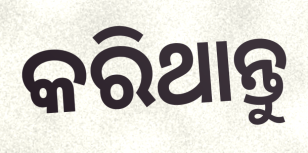
କରିଥାନ୍ତୁ